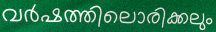
വർഷത്തിലൊരിക്കലും